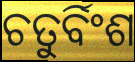
ଚତୁର୍ବିଂଶ